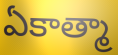
ఏకాత్మా